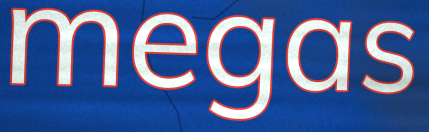
megas